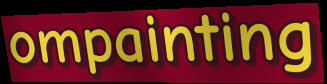
ompainting